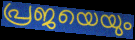
പ്രജയെയും